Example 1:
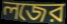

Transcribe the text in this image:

লজের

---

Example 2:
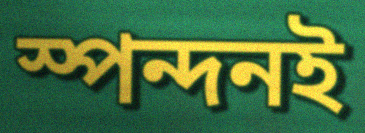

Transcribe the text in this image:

স্পন্দনই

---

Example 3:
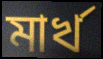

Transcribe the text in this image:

মার্খ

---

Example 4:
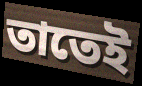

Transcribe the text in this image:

তাতেই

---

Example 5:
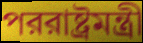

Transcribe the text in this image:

পররাষ্ট্রমন্ত্রী